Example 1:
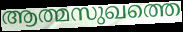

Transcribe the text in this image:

ആത്മസുഖത്തെ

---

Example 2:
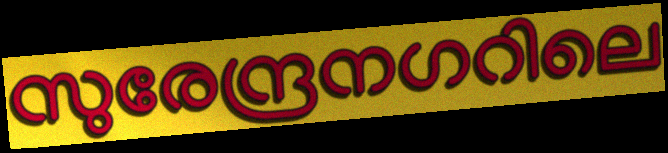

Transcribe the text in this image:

സുരേന്ദ്രനഗറിലെ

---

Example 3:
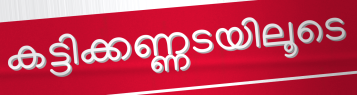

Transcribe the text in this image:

കട്ടിക്കണ്ണടയിലൂടെ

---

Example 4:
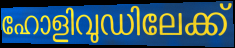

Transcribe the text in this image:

ഹോളിവുഡിലേക്ക്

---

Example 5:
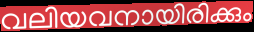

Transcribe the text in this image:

വലിയവനായിരിക്കും